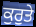
ਕੁਰੁਤੇ